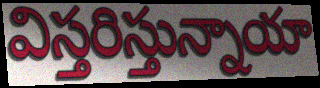
విస్తరిస్తున్నాయా